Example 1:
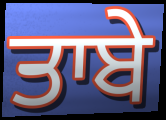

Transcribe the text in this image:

ਤਾਬੇ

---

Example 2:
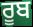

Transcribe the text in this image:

ਰੂਬ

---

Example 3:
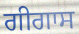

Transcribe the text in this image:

ਗੀਗਾਸ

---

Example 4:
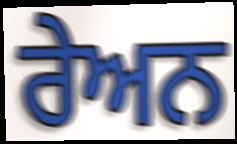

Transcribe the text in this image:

ਰੇਅਨ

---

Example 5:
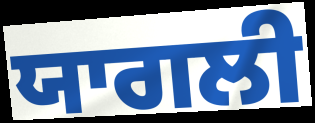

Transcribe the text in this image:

ਯਾਗਲੀ